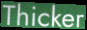
Thicker